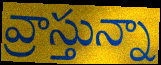
వ్రాస్తున్నా